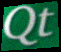
Qt